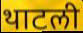
थाटली